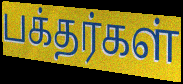
பக்தர்கள்